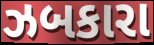
ઝબકારા